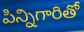
పిన్నిగారితో